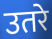
उतरे